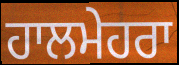
ਹਾਲਮੇਹਰਾ